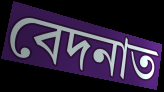
বেদনাত